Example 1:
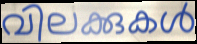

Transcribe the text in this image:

വിലക്കുകൾ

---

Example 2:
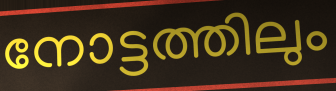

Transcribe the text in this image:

നോട്ടത്തിലും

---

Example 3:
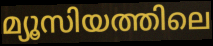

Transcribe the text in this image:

മ്യൂസിയത്തിലെ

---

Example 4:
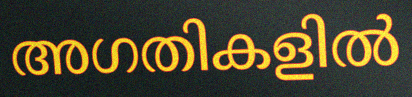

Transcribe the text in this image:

അഗതികളിൽ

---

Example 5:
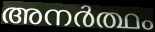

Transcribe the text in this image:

അനർത്ഥം